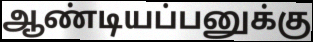
ஆண்டியப்பனுக்கு